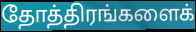
தோத்திரங்களைக்